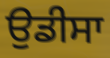
ਉਡੀਸਾ